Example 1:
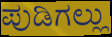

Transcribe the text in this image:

ಪುಡಿಗಲ್ಲು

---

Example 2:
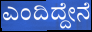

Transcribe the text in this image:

ಎಂದಿದ್ದೇನೆ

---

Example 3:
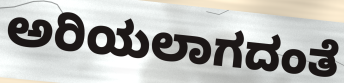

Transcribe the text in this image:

ಅರಿಯಲಾಗದಂತೆ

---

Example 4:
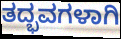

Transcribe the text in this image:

ತದ್ಭವಗಳಾಗಿ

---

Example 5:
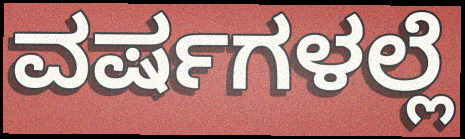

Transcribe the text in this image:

ವರ್ಷಗಳಲ್ಲೆ